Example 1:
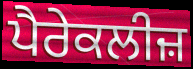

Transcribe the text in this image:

ਪੈਰੇਕਲੀਜ਼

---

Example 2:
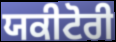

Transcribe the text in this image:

ਯਕੀਟੋਰੀ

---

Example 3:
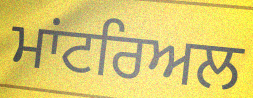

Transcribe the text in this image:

ਮਾਂਟਰਿਅਲ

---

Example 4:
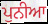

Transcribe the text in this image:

ਪੁਨੀਆ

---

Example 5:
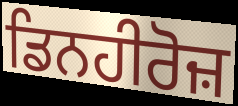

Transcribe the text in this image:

ਡਿਨਹੀਰੋਜ਼